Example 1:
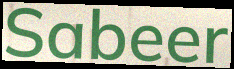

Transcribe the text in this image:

Sabeer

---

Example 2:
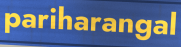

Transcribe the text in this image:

pariharangal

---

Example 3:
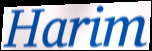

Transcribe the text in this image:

Harim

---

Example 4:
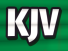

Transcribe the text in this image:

KJV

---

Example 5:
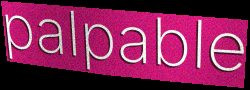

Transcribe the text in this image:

palpable